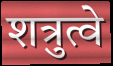
शत्रुत्वे